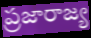
ప్రజారాజ్య